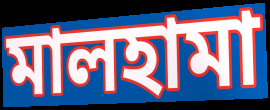
মালহামা